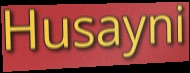
Husayni